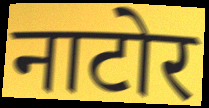
नाटोर